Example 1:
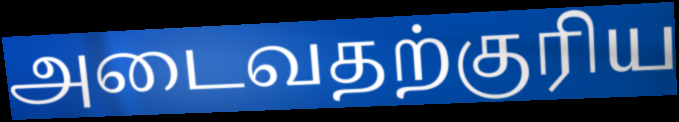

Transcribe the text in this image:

அடைவதற்குரிய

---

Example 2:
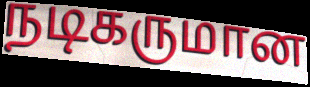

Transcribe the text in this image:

நடிகருமான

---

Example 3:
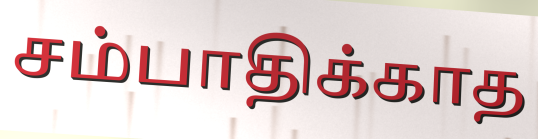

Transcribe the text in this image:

சம்பாதிக்காத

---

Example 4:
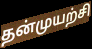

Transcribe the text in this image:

தன்முயற்சி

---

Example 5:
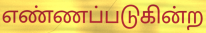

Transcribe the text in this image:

எண்ணப்படுகின்ற